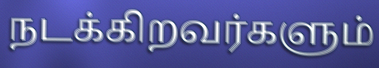
நடக்கிறவர்களும்